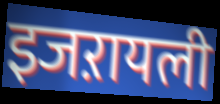
इजऱायली